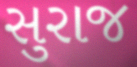
સુરાજ